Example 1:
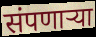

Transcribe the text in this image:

संपणार्‍या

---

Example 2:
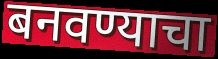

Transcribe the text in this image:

बनवण्याचा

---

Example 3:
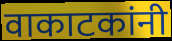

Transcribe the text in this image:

वाकाटकांनी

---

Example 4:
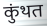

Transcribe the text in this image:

कुंथत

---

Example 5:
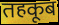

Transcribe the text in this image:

तहकूब